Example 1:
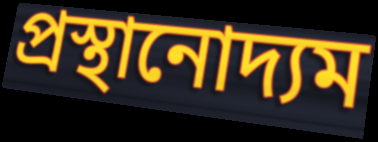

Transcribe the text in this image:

প্রস্থানোদ্যম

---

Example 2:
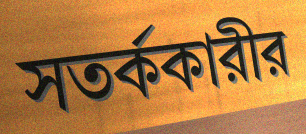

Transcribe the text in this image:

সতর্ককারীর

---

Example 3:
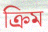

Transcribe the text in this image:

ক্রিম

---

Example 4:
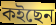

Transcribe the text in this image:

কইছেন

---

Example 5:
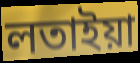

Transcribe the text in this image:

লতাইয়া